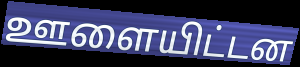
ஊளையிட்டன